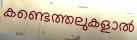
കണ്ടെത്തലുകളാൽ